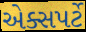
એક્સપર્ટે